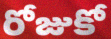
రోజుకో